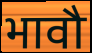
भावौ